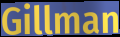
Gillman